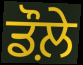
ਡੌਲ਼ੇ